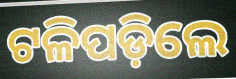
ଟଳିପଡ଼ିଲେ